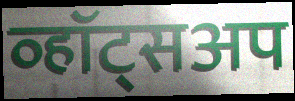
व्हॉट्सअप